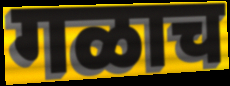
गळाच